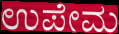
ಉಪೇಮ